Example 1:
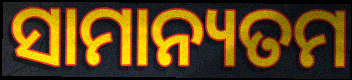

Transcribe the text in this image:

ସାମାନ୍ୟତମ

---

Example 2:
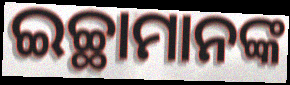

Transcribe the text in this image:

ଇଚ୍ଛାମାନଙ୍କ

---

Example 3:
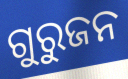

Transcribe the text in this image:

ଗୁରୁଜନ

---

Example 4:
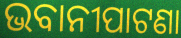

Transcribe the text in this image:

ଭବାନୀପାଟଣା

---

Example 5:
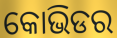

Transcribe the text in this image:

କୋଭିଡର